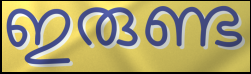
ഇരുണ്ട